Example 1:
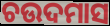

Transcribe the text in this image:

ଚଉଦମାସ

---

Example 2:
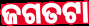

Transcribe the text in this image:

ଜଗତଟା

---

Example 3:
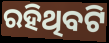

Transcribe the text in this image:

ରହିଥିବଟି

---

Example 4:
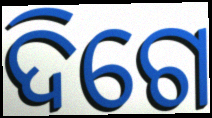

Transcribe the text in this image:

ଦିଗେ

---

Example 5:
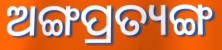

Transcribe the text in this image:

ଅଙ୍ଗପ୍ରତ୍ୟଙ୍ଗ